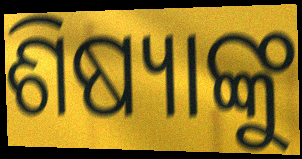
ଶିଷ୍ୟାଙ୍କୁ